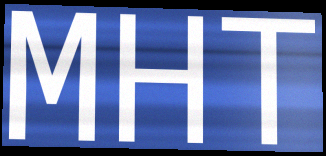
MHT